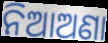
ନିଆଅଣା